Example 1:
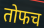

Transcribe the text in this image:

तोफच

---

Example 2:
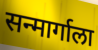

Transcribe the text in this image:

सन्मार्गाला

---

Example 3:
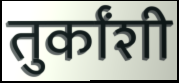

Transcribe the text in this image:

तुर्कांशी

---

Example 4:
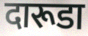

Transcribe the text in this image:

दारूडा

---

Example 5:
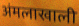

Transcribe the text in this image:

अंमलाखाली